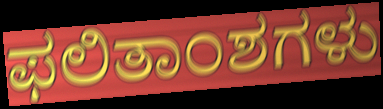
ಫಲಿತಾಂಶಗಳು